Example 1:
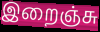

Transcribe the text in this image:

இறைஞ்சு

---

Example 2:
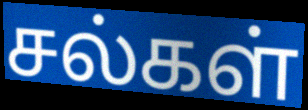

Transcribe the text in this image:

சல்கள்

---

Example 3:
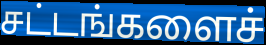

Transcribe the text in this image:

சட்டங்களைச்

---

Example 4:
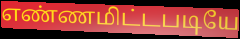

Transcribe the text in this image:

எண்ணமிட்டபடியே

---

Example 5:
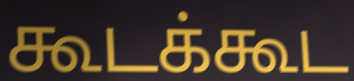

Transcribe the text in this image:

கூடக்கூட